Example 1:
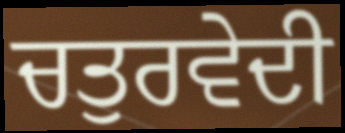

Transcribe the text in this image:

ਚਤੁਰਵੇਦੀ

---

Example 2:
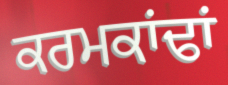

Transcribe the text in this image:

ਕਰਮਕਾਂਢਾਂ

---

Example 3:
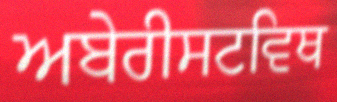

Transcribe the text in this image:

ਅਬੇਰੀਸਟਵਿਥ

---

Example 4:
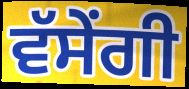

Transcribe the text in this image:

ਵੱਸੇਂਗੀ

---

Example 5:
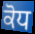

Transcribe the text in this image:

ਕੋਧ